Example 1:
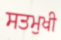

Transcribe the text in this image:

ਸਤਮੁਖੀ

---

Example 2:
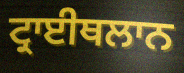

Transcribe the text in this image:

ਟ੍ਰਾਈਥਲਾਨ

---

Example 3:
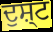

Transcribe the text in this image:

ਦੁਸ਼੍ਟ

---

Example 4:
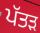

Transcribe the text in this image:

ਪੱਤਡ਼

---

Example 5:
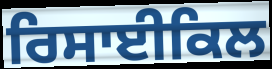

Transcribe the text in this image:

ਰਿਸਾਈਕਿਲ